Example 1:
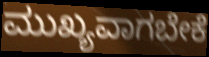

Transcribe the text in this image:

ಮುಖ್ಯವಾಗಬೇಕೆ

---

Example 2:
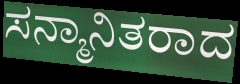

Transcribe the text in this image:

ಸನ್ಮಾನಿತರಾದ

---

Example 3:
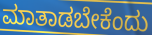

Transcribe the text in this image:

ಮಾತಾಡಬೇಕೆಂದು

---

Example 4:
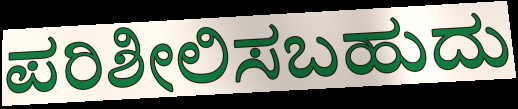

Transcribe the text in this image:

ಪರಿಶೀಲಿಸಬಹುದು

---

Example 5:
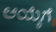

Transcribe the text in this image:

ಆಯ್ಕೆಗೆ